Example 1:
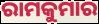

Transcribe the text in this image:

ରାମକୁମାର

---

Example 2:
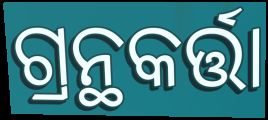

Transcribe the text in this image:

ଗ୍ରନ୍ଥକର୍ତ୍ତା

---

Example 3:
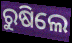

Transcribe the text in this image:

ରୁଷିଲେ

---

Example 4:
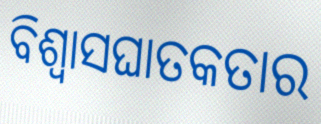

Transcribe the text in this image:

ବିଶ୍ଵାସଘାତକତାର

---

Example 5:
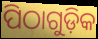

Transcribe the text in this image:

ପିଠାଗୁଡ଼ିକ